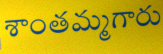
శాంతమ్మగారు